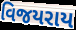
વિજયરાય